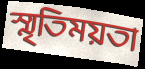
স্মৃতিময়তা